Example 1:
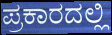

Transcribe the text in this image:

ಪ್ರಕಾರದಲ್ಲಿ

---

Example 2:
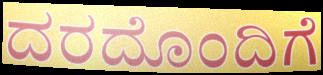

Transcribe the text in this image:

ದರದೊಂದಿಗೆ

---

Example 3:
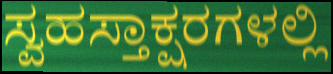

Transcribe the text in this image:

ಸ್ವಹಸ್ತಾಕ್ಷರಗಳಲ್ಲಿ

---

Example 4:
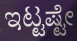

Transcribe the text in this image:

ಇಟ್ಟಷ್ಟೇ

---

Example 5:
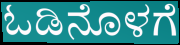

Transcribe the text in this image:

ಓಡಿನೊಳಗೆ